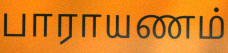
பாராயணம்